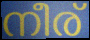
നീര്